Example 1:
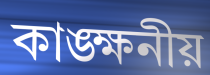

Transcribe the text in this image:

কাঙ্ক্ষনীয়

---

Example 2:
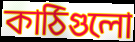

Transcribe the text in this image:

কাঠিগুলো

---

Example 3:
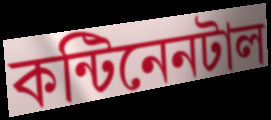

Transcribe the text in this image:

কন্টিনেনটাল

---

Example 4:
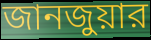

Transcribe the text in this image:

জানজুয়ার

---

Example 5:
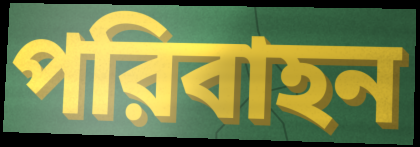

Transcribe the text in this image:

পরিবাহন